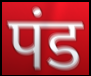
पंड